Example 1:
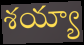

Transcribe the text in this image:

శయ్యా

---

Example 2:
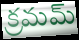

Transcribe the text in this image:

క్రమమ్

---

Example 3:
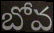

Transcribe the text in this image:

బోవ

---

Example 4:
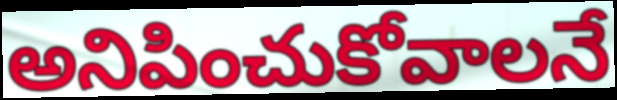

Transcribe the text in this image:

అనిపించుకోవాలనే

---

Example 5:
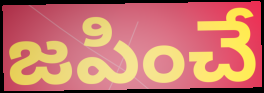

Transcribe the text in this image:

జపించే